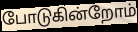
போடுகின்றோம்